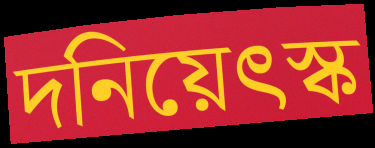
দনিয়েৎস্ক